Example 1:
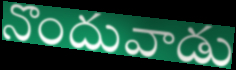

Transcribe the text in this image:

నొందువాడు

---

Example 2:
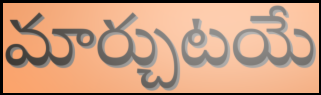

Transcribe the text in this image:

మార్చుటయే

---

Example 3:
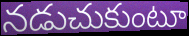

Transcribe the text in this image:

నడుచుకుంటూ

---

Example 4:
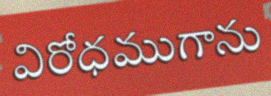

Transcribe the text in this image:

విరోధముగాను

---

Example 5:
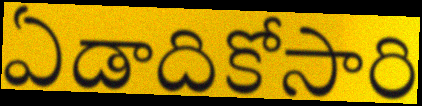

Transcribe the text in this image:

ఏడాదికోసారి